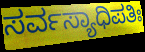
ಸರ್ವಸ್ಯಾಧಿಪತಿಃ